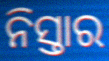
ନିସ୍ତାର